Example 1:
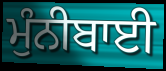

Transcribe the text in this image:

ਮੁੰਨੀਬਾਈ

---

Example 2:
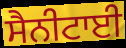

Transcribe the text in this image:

ਸੈਨੀਟਾਈ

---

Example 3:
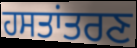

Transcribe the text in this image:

ਹਸਤਾਂਤਰਣ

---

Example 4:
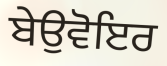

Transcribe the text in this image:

ਬੇਉਵੋਇਰ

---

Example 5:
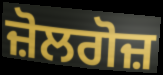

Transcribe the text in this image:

ਜ਼ੋਲਗੋਜ਼